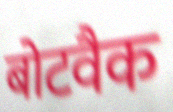
बोटवैक